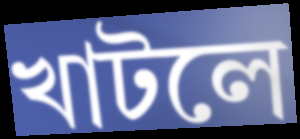
খাটলে